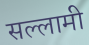
सल्लामी